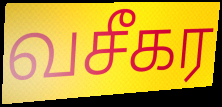
வசீகர